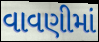
વાવણીમાં